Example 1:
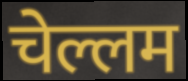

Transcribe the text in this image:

चेल्लम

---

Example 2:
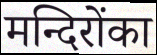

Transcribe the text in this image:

मन्दिरोंका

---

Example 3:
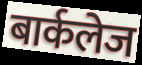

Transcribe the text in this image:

बार्कलेज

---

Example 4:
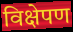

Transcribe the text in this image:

विक्षेपण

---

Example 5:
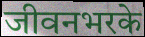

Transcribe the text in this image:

जीवनभरके